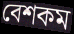
বেশকম